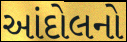
આંદોલનો